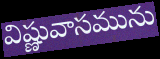
విష్ణువాసమును